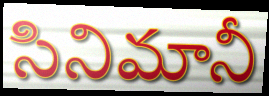
సినిమానీ